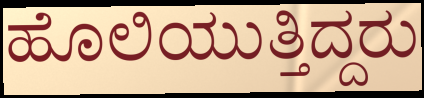
ಹೊಲಿಯುತ್ತಿದ್ದರು